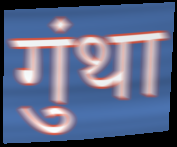
गुंथा